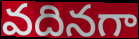
వదినగా